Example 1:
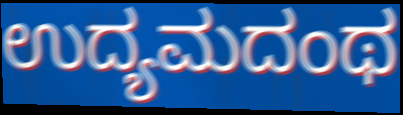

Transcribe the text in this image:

ಉದ್ಯಮದಂಥ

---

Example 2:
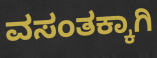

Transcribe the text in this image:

ವಸಂತಕ್ಕಾಗಿ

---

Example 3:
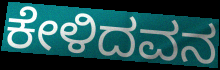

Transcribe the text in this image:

ಕೇಳಿದವನ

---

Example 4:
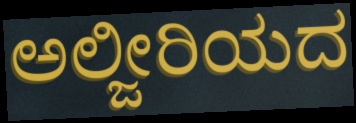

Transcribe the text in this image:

ಅಲ್ಜೀರಿಯದ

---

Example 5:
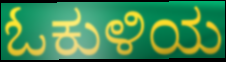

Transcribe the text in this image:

ಓಕುಳಿಯ